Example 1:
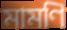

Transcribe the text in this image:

মামণি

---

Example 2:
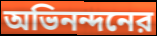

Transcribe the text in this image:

অভিনন্দনের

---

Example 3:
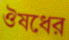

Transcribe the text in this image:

ঔষধের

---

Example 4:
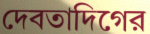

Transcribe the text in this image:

দেবতাদিগের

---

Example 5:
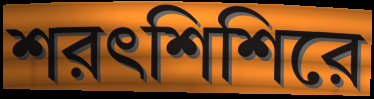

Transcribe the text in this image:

শরৎশিশিরে